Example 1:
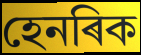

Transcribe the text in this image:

হেনৰিক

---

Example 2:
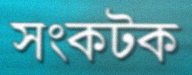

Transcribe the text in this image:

সংকটক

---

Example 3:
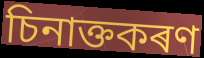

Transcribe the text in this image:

চিনাক্তকৰণ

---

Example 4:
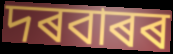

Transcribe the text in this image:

দৰবাৰৰ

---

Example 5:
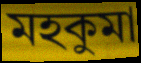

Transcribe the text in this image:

মহকুমা